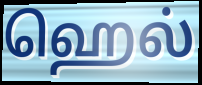
ஹெல்